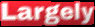
Largely